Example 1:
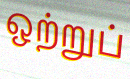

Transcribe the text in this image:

ஒற்றுப்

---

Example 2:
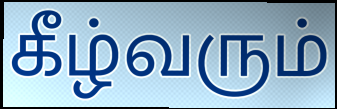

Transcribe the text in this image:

கீழ்வரும்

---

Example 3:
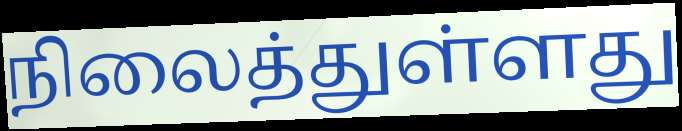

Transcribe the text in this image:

நிலைத்துள்ளது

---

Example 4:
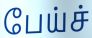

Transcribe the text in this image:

பேய்ச்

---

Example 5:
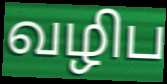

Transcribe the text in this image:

வழிப